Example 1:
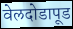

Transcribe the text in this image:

वेलदोडापूड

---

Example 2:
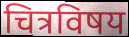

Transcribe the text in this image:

चित्रविषय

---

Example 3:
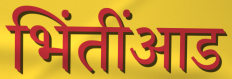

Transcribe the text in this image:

भिंतींआड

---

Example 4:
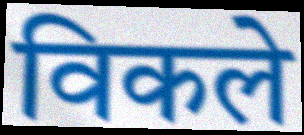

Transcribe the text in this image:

विकले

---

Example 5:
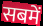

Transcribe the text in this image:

सबमें